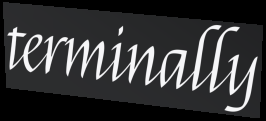
terminally